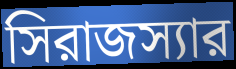
সিরাজস্যার